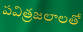
పవిత్రజలాలతో